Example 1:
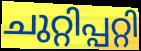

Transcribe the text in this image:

ചുറ്റിപ്പറ്റി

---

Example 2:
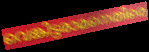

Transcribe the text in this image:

വെങ്കിട്ടരാമനെതിരെ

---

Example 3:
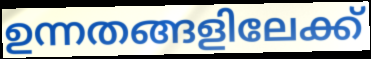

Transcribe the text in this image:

ഉന്നതങ്ങളിലേക്ക്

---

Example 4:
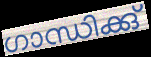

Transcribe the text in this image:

ഗാന്ധിക്കു്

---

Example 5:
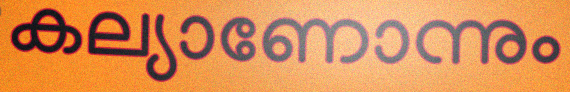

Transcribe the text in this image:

കല്യാണോന്നും